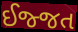
ઈજ્જત